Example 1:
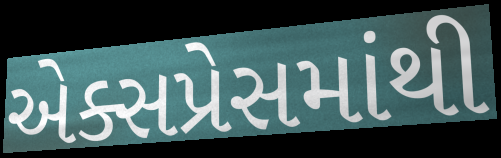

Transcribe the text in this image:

એક્સપ્રેસમાંથી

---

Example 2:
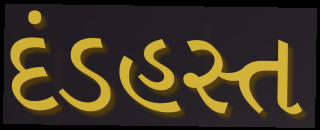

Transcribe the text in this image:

દંડહસ્ત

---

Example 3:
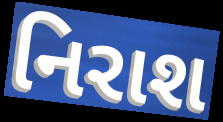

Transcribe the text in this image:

નિરાશ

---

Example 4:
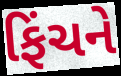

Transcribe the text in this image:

ફિંચને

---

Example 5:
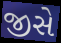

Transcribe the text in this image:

જીસે